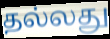
தல்லது